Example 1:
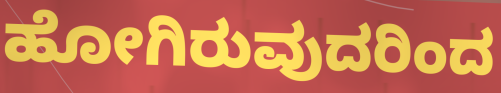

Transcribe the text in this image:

ಹೋಗಿರುವುದರಿಂದ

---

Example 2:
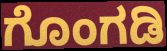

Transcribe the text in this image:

ಗೊಂಗಡಿ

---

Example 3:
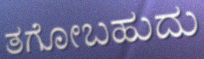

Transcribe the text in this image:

ತಗೋಬಹುದು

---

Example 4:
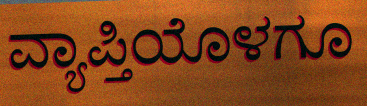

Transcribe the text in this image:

ವ್ಯಾಪ್ತಿಯೊಳಗೂ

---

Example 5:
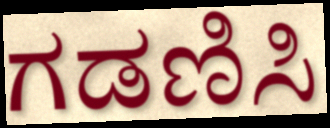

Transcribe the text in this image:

ಗಡಣಿಸಿ